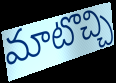
మాటొచ్చి